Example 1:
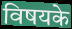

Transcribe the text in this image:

विषयके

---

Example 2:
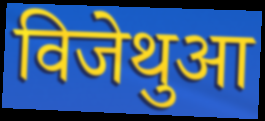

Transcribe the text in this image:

विजेथुआ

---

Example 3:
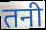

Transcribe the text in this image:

तनी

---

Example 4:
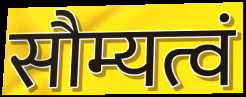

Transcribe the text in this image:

सौम्यत्वं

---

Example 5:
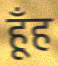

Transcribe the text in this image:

हूँह